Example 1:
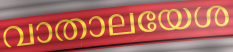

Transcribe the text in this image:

വാതാലയേശ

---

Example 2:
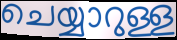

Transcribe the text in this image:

ചെയ്യാറുള്ള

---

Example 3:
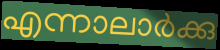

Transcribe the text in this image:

എന്നാലാർക്കു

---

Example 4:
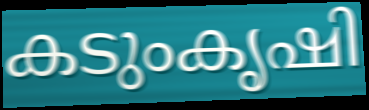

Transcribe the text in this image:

കടുംകൃഷി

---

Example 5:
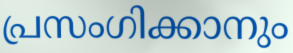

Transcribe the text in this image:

പ്രസംഗിക്കാനും